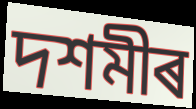
দশমীৰ